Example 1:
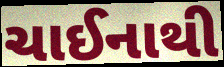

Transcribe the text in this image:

ચાઈનાથી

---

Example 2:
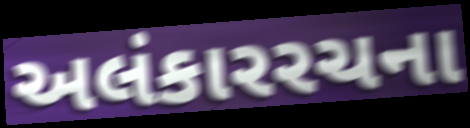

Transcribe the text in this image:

અલંકારરચના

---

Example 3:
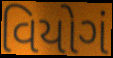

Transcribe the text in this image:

વિયોગં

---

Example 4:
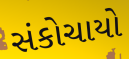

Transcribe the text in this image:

સંકોચાયો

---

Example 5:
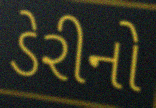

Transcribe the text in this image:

ડેરીનો